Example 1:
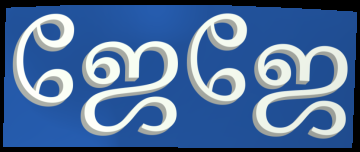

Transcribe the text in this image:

ஜேஜே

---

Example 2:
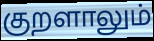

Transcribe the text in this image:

குறளாலும்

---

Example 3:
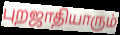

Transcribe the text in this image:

புறஜாதியாரும்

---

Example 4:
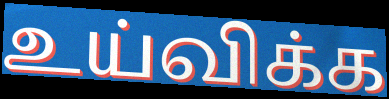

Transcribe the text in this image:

உய்விக்க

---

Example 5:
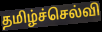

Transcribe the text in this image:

தமிழ்ச்செல்வி